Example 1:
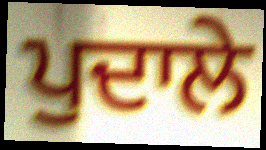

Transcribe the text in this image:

ਪੁਦਾਲੇ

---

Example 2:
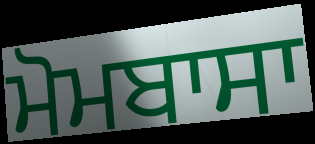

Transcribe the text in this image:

ਮੋਮਬਾਸਾ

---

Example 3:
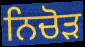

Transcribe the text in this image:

ਨਿਚੋਡ਼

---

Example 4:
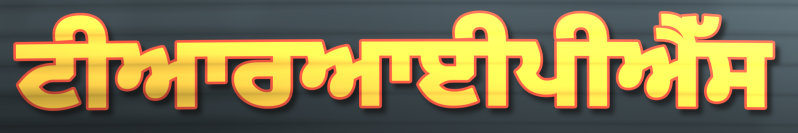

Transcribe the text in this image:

ਟੀਆਰਆਈਪੀਐੱਸ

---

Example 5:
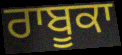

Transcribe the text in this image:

ਰਾਬੂਕਾ